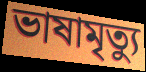
ভাষামৃত্যু